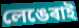
লেঙেৰাই